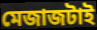
মেজাজটাই